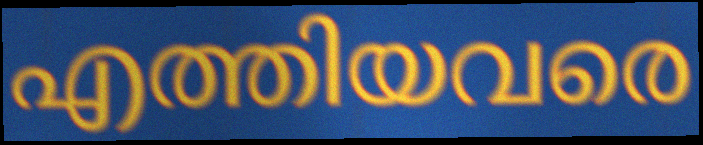
എത്തിയവരെ